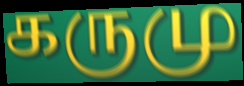
கருமு